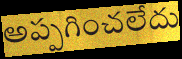
అప్పగించలేదు